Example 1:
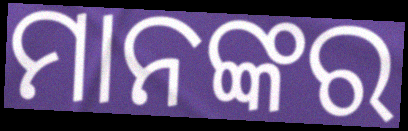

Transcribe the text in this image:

ମାନଙ୍କର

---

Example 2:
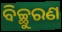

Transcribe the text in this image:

ବିଚ୍ଛୁରଣ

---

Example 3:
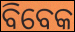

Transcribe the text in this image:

ବିବେକ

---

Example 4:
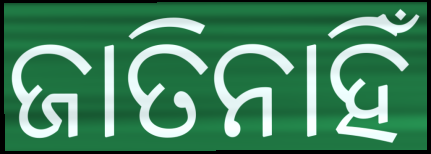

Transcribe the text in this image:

ଜାତିନାହିଁ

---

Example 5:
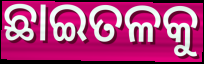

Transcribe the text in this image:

ଛାଇତଳକୁ